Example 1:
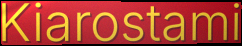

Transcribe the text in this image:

Kiarostami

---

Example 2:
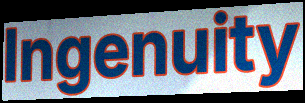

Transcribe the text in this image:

Ingenuity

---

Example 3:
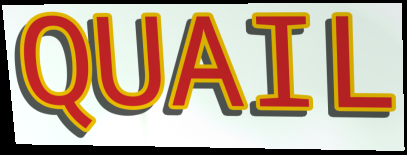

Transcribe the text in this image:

QUAIL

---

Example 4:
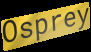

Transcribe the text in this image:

Osprey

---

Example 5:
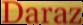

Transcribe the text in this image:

Daraz